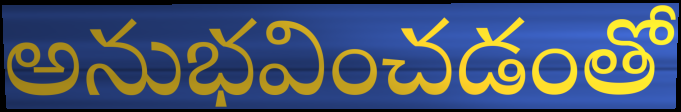
అనుభవించడంతో